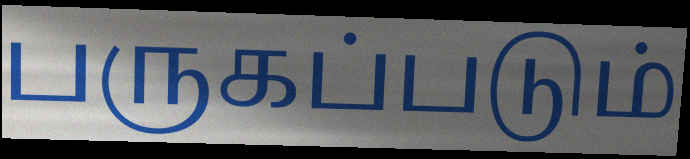
பருகப்படும்